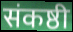
संकष्ठी